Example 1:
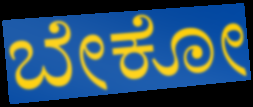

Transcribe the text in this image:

ಬೇಕೋ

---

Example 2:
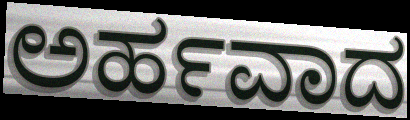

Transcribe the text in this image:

ಅರ್ಹವಾದ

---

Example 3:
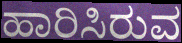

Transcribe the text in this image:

ಹಾರಿಸಿರುವ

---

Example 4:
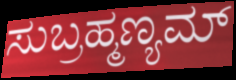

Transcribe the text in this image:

ಸುಬ್ರಹ್ಮಣ್ಯಮ್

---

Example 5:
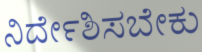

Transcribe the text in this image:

ನಿರ್ದೇಶಿಸಬೇಕು